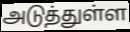
அடுத்துள்ள